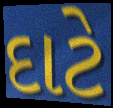
દાટે